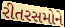
રીતરસમોને